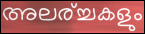
അലര്ച്ചകളും